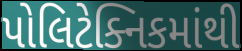
પોલિટેક્નિકમાંથી